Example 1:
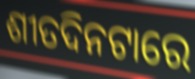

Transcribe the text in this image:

ଶୀତଦିନଟାରେ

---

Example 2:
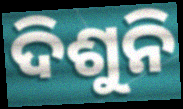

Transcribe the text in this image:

ଦିଶୁନି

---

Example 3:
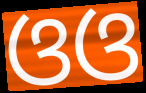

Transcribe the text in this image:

ଓଓ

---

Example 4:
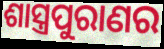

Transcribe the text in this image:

ଶାସ୍ତ୍ରପୁରାଣର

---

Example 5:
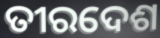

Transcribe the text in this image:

ତୀରଦେଶ